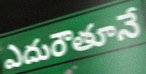
ఎదురౌతూనే